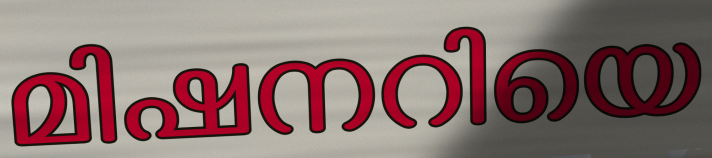
മിഷനറിയെ